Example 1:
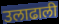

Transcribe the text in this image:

उलाढाली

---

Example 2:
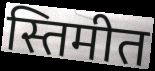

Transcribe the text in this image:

स्तिमीत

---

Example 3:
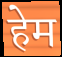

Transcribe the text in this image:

हेम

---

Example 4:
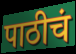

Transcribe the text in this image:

पाठीचं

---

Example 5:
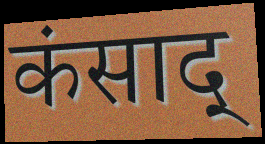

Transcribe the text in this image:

कंसाद्